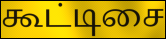
கூட்டிசை